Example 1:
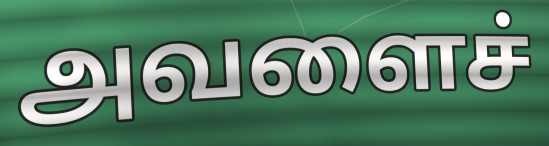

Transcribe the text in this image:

அவளைச்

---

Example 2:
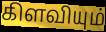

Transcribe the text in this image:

கிளவியும்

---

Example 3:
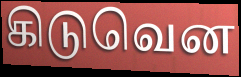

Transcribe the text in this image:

கிடுவென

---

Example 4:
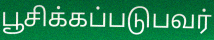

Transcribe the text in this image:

பூசிக்கப்படுபவர்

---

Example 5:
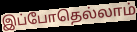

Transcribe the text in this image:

இப்போதெல்லாம்